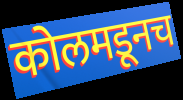
कोलमडूनच